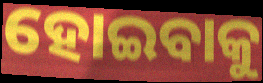
ହୋଇବାକୁ